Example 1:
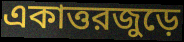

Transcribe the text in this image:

একাত্তরজুড়ে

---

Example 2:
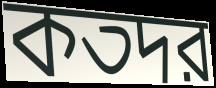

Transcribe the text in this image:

কতদর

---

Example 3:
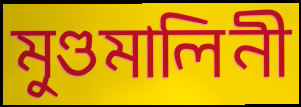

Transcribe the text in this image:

মুণ্ডমালিনী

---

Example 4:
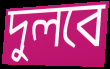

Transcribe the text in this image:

দুলবে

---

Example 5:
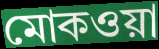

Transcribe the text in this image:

মোকওয়া